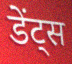
डेंट्स